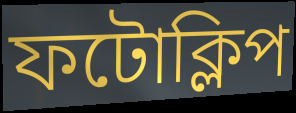
ফটোক্লিপ